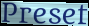
Preset